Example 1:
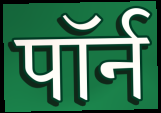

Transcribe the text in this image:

पॉर्न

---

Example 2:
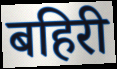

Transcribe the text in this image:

बहिरी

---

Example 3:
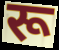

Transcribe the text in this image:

रू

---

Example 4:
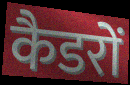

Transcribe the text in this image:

कैडरों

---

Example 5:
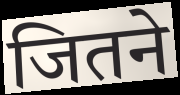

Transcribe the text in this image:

जितने